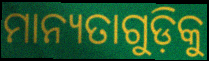
ମାନ୍ୟତାଗୁଡ଼ିକୁ